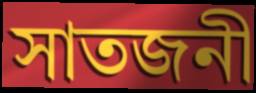
সাতজনী